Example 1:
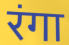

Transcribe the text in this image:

रंगा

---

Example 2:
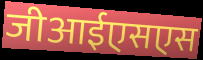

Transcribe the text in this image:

जीआईएसएस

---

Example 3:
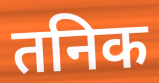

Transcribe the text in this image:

तनिक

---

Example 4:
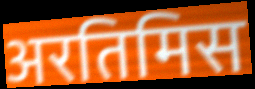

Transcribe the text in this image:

अरतिमिस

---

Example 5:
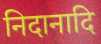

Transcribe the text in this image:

निदानादि